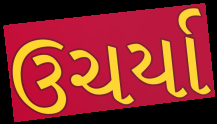
ઉચર્યા